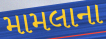
મામલાના